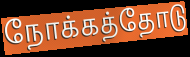
நோக்கத்தோடு